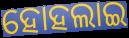
ହୋହଲାଇ